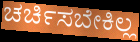
ಚರ್ಚಿಸಬೇಕಿಲ್ಲ